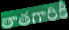
తాతగారికీ